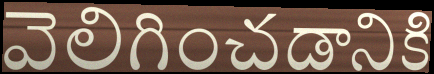
వెలిగించడానికి